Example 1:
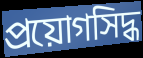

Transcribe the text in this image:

প্রয়োগসিদ্ধ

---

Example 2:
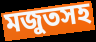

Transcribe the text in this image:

মজুতসহ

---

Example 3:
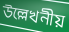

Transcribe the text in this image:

উল্লেখনীয়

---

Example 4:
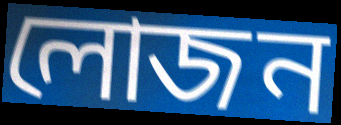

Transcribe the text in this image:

লোজন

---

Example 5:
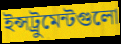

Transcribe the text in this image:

ইন্সট্রুমেন্টগুলো